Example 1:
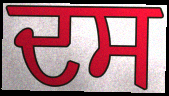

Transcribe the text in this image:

ਦਸ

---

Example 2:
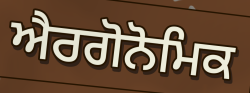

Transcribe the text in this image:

ਐਰਗੋਨੋਮਿਕ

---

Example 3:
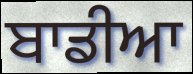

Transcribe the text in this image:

ਬਾਡੀਆ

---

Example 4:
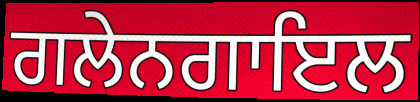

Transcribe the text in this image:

ਗਲੇਨਗਾਇਲ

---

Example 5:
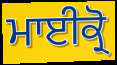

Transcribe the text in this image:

ਮਾਈਕ੍ਰੋ